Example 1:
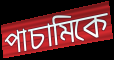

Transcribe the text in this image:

পাচামিকে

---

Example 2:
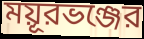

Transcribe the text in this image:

ময়ূরভঞ্জের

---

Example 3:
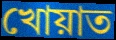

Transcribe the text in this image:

খোয়াত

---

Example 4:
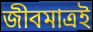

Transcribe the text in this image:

জীবমাত্রই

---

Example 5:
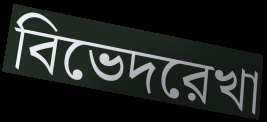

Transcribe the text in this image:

বিভেদরেখা